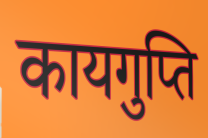
कायगुप्ति